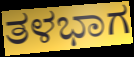
ತಳಭಾಗ